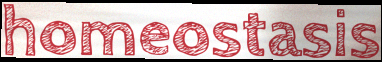
homeostasis